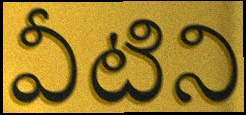
వీటిని